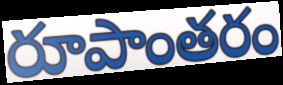
రూపాంతరం